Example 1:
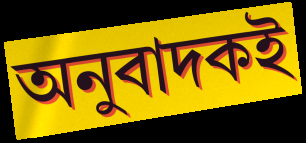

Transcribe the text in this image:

অনুবাদকই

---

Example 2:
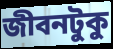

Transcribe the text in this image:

জীবনটুকু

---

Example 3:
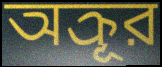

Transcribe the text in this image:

অক্রূর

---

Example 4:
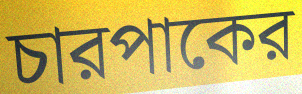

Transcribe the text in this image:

চারপাকের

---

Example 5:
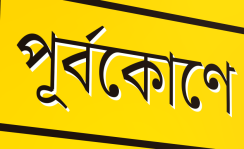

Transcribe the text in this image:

পূর্বকোণে